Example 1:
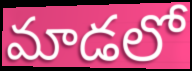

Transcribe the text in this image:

మాడలో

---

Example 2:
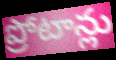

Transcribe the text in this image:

ప్రోటాన్లు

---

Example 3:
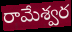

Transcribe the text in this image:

రామేశ్వర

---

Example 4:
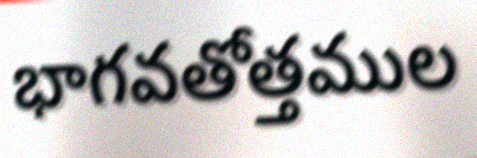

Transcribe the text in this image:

భాగవతోత్తముల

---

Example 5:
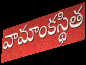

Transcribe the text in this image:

వామాంకస్థిత